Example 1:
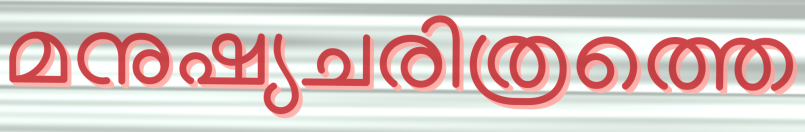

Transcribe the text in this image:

മനുഷ്യചരിത്രത്തെ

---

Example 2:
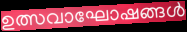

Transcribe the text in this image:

ഉത്സവാഘോഷങ്ങൾ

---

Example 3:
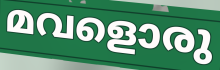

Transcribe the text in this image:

മവളൊരു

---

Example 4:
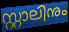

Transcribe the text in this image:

സ്റ്റാലിനും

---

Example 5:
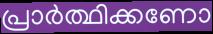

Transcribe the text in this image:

പ്രാർത്ഥിക്കണോ